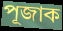
পূজাক